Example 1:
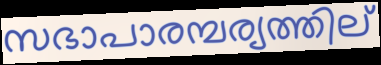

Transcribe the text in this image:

സഭാപാരമ്പര്യത്തില്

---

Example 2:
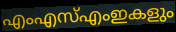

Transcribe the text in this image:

എംഎസ്എംഇകളും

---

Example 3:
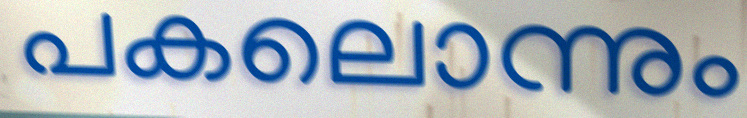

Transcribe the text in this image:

പകലൊന്നും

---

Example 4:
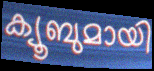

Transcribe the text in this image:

ക്യൂബുമായി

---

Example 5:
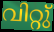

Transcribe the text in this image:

വിറ്റു്